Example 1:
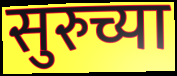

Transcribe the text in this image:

सुरुच्या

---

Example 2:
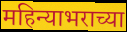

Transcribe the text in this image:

महिन्याभराच्या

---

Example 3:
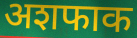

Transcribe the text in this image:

अशफाक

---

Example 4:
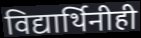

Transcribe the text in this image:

विद्यार्थिनीही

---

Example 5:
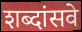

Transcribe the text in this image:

शब्दांसवे